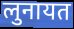
लुनायत